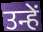
उन्हें